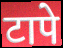
टापे